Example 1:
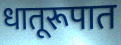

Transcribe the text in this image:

धातूरूपात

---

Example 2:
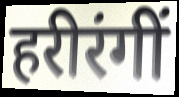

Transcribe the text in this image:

हरीरंगीं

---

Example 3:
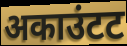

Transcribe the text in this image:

अकाउंटट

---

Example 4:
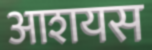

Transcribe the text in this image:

आशयस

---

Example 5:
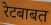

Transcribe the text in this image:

रेटबाबत